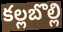
కల్లబొల్లి